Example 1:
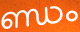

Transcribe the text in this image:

ണ്ഡം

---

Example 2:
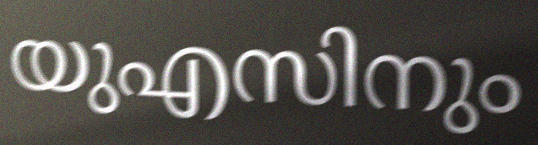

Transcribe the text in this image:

യുഎസിനും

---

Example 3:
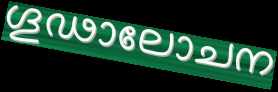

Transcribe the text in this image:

ഗൂഢാലോചന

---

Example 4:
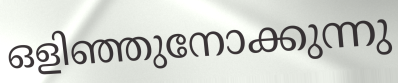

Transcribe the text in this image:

ഒളിഞ്ഞുനോക്കുന്നു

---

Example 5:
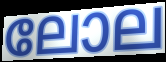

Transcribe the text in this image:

ലോല